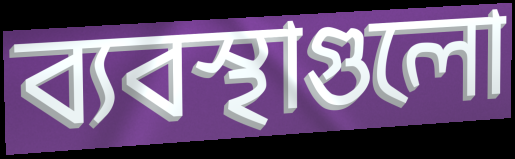
ব্যবস্থাগুলো